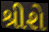
શ્રીશે